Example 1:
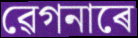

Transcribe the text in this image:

ৱেগনাৰে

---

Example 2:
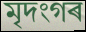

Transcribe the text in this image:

মৃদংগৰ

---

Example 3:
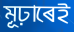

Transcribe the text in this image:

মূঢ়াৰেই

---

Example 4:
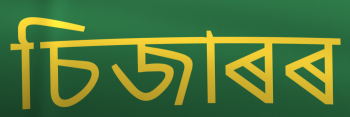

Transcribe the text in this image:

চিজাৰৰ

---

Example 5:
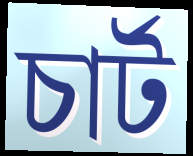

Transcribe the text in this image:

চাৰ্ট